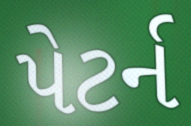
પેટર્ન